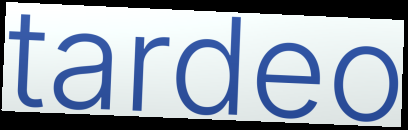
tardeo